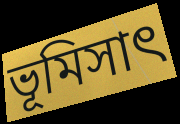
ভূমিসাৎ